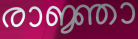
രാജ്ഞാ